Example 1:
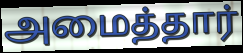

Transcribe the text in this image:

அமைத்தார்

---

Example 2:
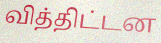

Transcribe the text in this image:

வித்திட்டன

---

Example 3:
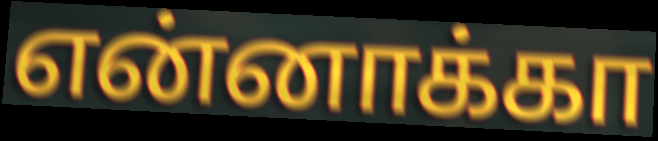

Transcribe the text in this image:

என்னாக்கா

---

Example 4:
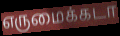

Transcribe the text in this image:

எருமைக்கடா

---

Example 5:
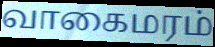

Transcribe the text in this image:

வாகைமரம்